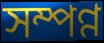
সম্পণ্ন